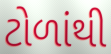
ટોળાંથી